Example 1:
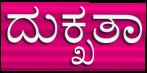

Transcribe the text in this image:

ದುಕ್ಖತಾ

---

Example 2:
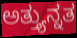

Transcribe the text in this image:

ಅತ್ತ್ಯುನ್ನತ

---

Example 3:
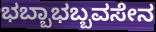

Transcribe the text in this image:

ಭಬ್ಬಾಭಬ್ಬವಸೇನ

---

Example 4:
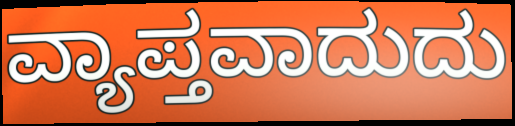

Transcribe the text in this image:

ವ್ಯಾಪ್ತವಾದುದು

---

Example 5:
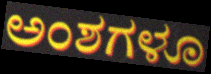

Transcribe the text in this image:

ಅಂಶಗಳೂ